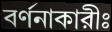
বর্ণনাকারীঃ